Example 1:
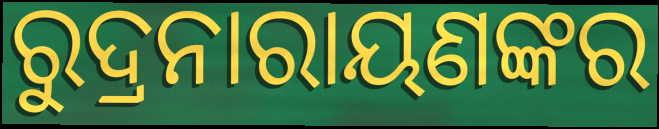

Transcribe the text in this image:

ରୁଦ୍ରନାରାୟଣଙ୍କର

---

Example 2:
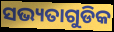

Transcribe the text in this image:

ସଭ୍ୟତାଗୁଡିକ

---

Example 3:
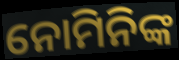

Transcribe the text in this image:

ନୋମିନିଙ୍କ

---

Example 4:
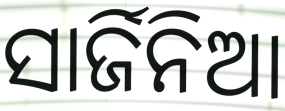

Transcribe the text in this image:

ସାର୍ଜିନିଆ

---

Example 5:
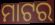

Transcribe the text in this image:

ମାଟର